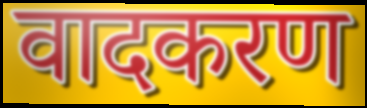
वादकरण